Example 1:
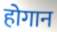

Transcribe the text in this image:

होगान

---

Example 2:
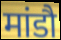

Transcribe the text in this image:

मांडौ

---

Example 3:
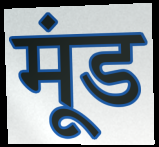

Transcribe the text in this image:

मूंड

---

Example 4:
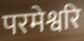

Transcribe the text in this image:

परमेश्वरि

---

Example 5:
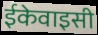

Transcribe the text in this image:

ईकेवाइसी